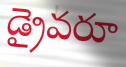
డ్రైవరూ